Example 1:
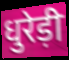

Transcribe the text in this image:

धुरेड़ी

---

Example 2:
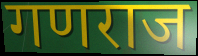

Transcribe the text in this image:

गणराज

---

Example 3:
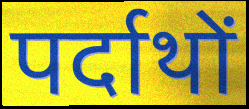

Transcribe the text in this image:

पर्दाथों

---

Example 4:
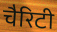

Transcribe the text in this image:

चैरिटी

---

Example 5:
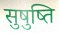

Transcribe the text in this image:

सुषुष्ति